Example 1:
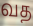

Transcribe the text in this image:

வத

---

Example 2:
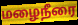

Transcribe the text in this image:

மழைநீரை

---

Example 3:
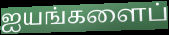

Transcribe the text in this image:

ஐயங்களைப்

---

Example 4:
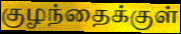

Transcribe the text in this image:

குழந்தைக்குள்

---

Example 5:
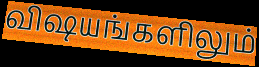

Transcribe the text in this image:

விஷயங்களிலும்